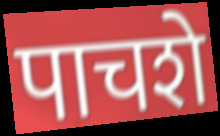
पाचशे